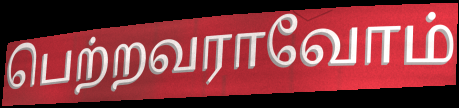
பெற்றவராவோம்